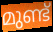
മുണ്ട്